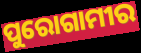
ପୁରୋଗାମୀର